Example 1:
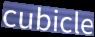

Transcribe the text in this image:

cubicle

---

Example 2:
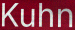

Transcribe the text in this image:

Kuhn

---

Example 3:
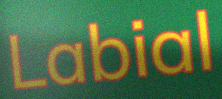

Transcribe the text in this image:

Labial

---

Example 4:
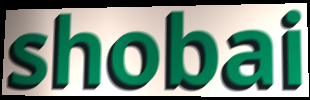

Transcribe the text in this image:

shobai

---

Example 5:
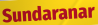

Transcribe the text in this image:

Sundaranar